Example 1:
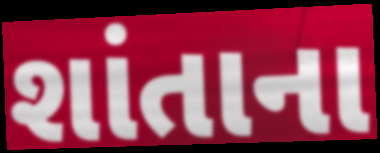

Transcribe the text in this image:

શાંતાના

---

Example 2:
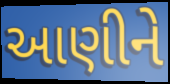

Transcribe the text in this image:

આણીને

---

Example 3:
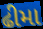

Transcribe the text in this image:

ઢીમા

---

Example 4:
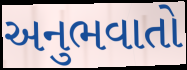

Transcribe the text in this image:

અનુભવાતો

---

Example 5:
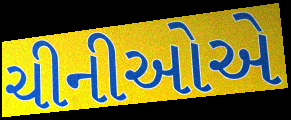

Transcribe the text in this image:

ચીનીઓએ